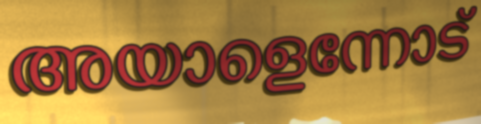
അയാളെന്നോട്